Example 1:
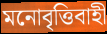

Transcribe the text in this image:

মনোবৃত্তিবাহী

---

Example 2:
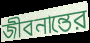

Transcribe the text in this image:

জীবনান্তের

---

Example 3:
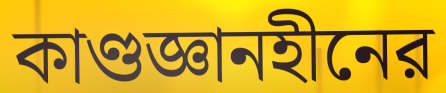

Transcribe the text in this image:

কাণ্ডজ্ঞানহীনের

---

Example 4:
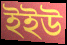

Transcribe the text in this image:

ইইউ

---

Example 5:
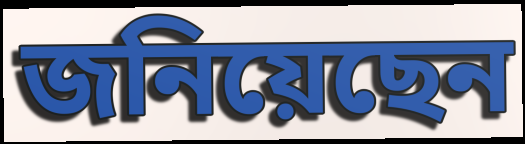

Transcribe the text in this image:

জনিয়েছেন